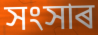
সংসাৰ